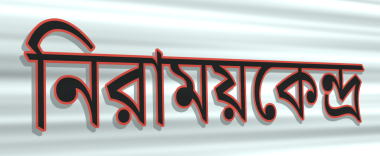
নিরাময়কেন্দ্র